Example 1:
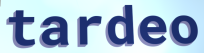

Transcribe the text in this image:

tardeo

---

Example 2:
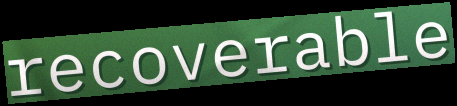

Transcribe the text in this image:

recoverable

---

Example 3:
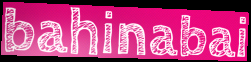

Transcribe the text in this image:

bahinabai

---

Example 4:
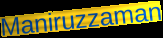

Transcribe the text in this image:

Maniruzzaman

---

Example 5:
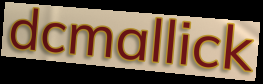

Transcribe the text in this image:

dcmallick